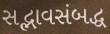
સદ્ભાવસંબદ્ધ